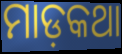
ମାଡ଼କଥା